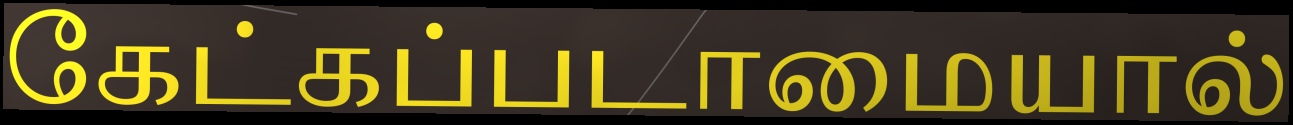
கேட்கப்படாமையால்